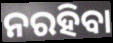
ନରହିବା